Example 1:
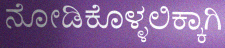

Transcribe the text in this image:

ನೋಡಿಕೊಳ್ಳಲಿಕ್ಕಾಗಿ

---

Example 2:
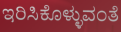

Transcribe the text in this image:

ಇರಿಸಿಕೊಳ್ಳುವಂತೆ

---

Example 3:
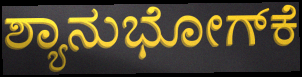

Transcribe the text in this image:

ಶ್ಯಾನುಭೋಗ್‌ಕೆ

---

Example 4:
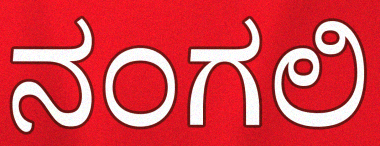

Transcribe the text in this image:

ನಂಗಲಿ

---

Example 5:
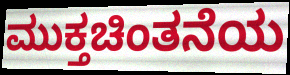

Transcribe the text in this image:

ಮುಕ್ತಚಿಂತನೆಯ